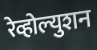
रेव्होल्युशन